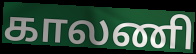
காலணி